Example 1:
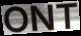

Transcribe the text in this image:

ONT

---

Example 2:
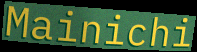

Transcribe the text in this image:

Mainichi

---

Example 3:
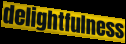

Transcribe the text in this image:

delightfulness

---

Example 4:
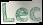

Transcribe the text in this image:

Lec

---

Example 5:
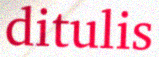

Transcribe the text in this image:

ditulis